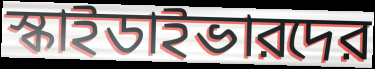
স্কাইডাইভারদের